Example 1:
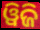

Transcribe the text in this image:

ୱିଜି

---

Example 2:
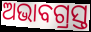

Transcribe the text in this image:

ଅଭାବଗ୍ରସ୍ତ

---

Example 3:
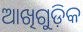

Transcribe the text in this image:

ଆଖିଗୁଡ଼ିକ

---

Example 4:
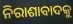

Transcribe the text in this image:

ନିରାଶାବାଦକୁ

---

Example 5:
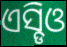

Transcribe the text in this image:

ଏସ୍ଡିଓ